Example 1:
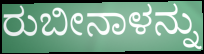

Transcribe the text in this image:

ರುಬೀನಾಳನ್ನು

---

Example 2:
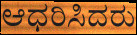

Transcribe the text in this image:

ಆಧರಿಸಿದರು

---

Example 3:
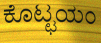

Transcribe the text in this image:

ಕೊಟ್ಟಯಂ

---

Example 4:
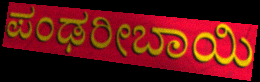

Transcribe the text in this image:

ಪಂಢರೀಬಾಯಿ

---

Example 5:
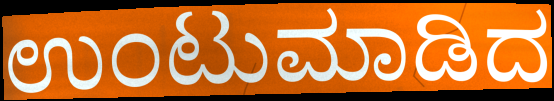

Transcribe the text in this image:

ಉಂಟುಮಾಡಿದ